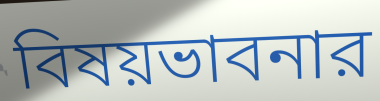
বিষয়ভাবনার